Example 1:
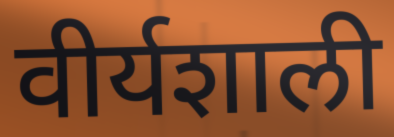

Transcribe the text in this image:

वीर्यशाली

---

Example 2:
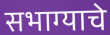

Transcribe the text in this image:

सभाग्याचे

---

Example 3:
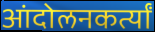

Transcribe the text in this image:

आंदोलनकर्त्यां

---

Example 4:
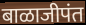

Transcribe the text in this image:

बाळाजीपंत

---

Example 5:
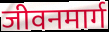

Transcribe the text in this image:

जीवनमार्ग